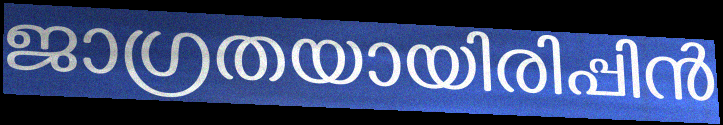
ജാഗ്രതയായിരിപ്പിൻ